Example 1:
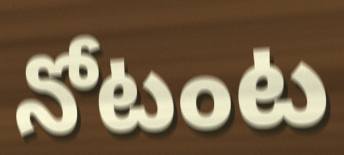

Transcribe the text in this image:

నోటంట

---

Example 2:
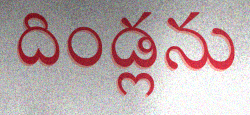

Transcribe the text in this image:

దిండ్లను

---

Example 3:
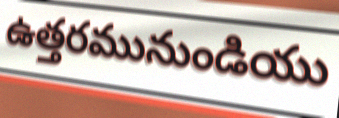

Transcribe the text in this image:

ఉత్తరమునుండియు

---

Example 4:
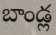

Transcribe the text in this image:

బాండ్ల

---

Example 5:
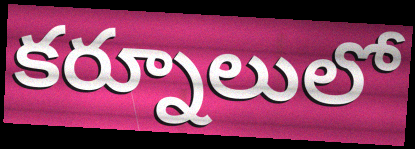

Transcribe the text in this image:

కర్నూలులో